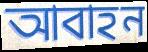
আবাহন